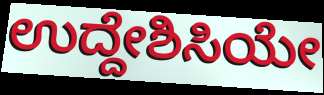
ಉದ್ದೇಶಿಸಿಯೇ